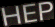
HEP